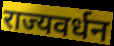
राज्यवर्धन